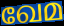
ഖേമ